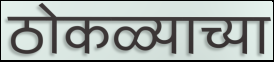
ठोकळ्याच्या